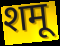
शमू